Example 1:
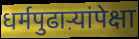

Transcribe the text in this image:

धर्मपुढाऱ्‍यांपेक्षा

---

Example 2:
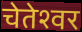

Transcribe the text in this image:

चेतेश्वर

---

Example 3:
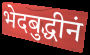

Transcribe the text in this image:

भेदबुद्धीनं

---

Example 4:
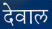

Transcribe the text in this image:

देवाल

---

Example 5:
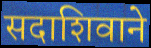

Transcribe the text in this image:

सदाशिवाने